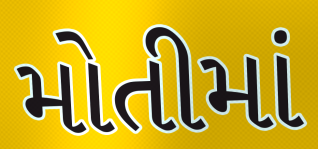
મોતીમાં